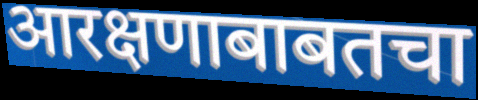
आरक्षणाबाबतचा